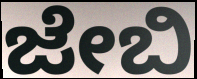
ಜೇಬಿ